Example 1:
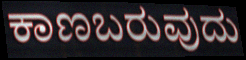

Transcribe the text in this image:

ಕಾಣಬರುವುದು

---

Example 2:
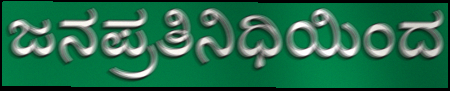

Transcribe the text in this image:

ಜನಪ್ರತಿನಿಧಿಯಿಂದ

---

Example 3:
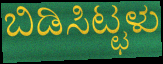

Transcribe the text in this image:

ಬಿಡಿಸಿಟ್ಟಳು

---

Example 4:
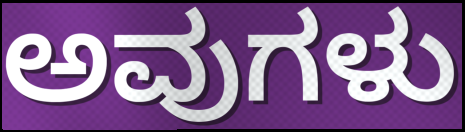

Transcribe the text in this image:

ಅವುಗಳು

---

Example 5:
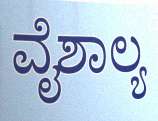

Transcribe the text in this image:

ವೈಶಾಲ್ಯ